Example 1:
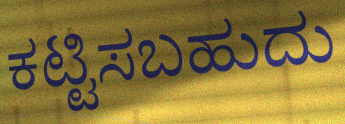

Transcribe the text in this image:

ಕಟ್ಟಿಸಬಹುದು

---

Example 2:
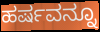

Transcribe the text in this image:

ಹರ್ಷವನ್ನೂ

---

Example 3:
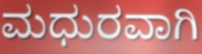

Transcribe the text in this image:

ಮಧುರವಾಗಿ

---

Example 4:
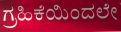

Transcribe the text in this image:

ಗ್ರಹಿಕೆಯಿಂದಲೇ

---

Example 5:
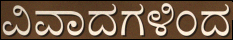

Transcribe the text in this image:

ವಿವಾದಗಳಿಂದ